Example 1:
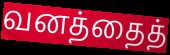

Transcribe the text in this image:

வனத்தைத்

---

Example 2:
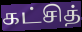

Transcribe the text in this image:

கட்சித்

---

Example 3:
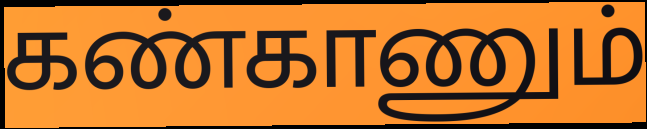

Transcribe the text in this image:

கண்காணும்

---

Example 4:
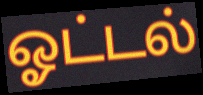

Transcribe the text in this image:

ஓட்டல்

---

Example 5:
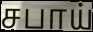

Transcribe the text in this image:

சபாய்